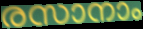
രസാനാം